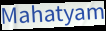
Mahatyam